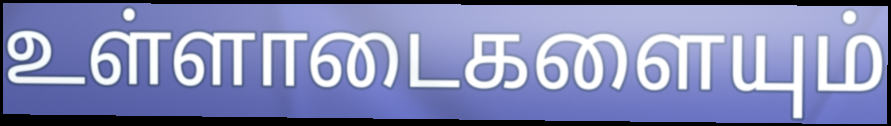
உள்ளாடைகளையும்